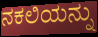
ನಕಲಿಯನ್ನು